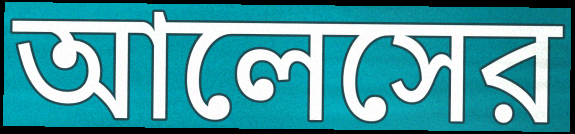
আলেসের